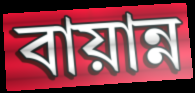
বায়ান্ন